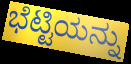
ಭೆಟ್ಟಿಯನ್ನು